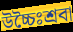
উচ্চৈঃশ্রবা